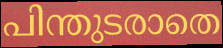
പിന്തുടരാതെ